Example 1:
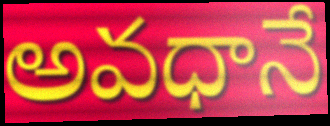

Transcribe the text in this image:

అవధానే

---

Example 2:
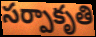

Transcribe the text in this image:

సర్పాకృతి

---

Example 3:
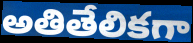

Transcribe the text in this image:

అతితేలికగా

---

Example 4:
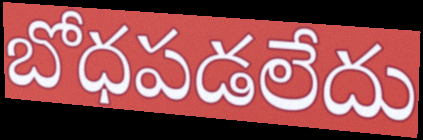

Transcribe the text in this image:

బోధపడలేదు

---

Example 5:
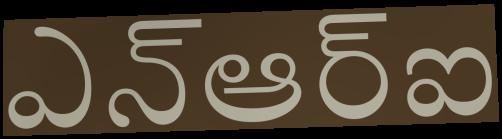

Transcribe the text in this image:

ఎన్ఆర్ఐ